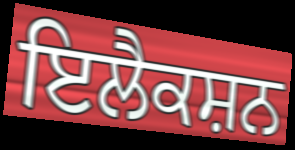
ਇਲੈਕਸ਼ਨ